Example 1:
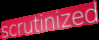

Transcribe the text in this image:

scrutinized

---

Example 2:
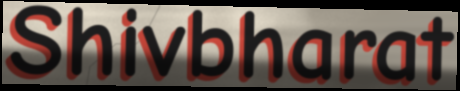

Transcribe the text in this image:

Shivbharat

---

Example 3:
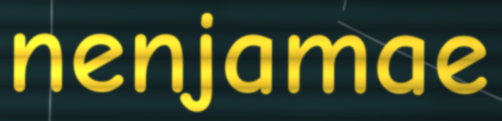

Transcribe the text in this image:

nenjamae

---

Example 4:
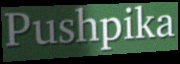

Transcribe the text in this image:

Pushpika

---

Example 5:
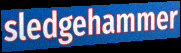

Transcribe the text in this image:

sledgehammer